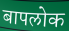
बापलोक